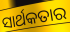
ସାର୍ଥକତାର